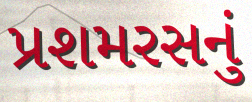
પ્રશમરસનું